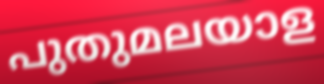
പുതുമലയാള